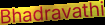
Bhadravathi